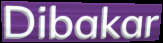
Dibakar